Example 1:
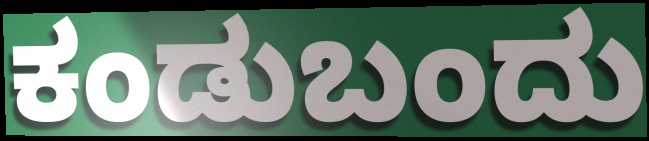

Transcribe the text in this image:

ಕಂಡುಬಂದು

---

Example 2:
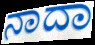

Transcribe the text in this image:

ನಾದಾ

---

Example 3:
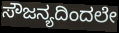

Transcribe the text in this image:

ಸೌಜನ್ಯದಿಂದಲೇ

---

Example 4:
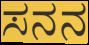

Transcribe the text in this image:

ಸನನ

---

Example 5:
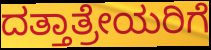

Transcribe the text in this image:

ದತ್ತಾತ್ರೇಯರಿಗೆ